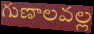
గుణాలవల్ల